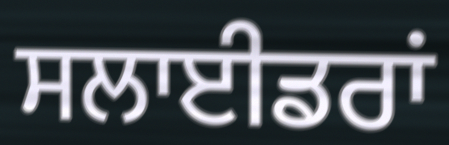
ਸਲਾਈਡਰਾਂ